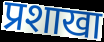
प्रशाखा